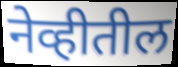
नेव्हीतील